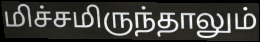
மிச்சமிருந்தாலும்